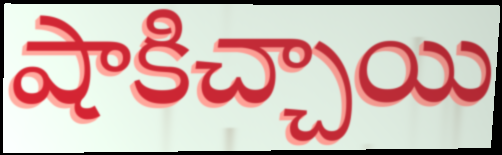
షాకిచ్చాయి